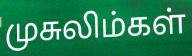
முசுலிம்கள்